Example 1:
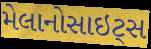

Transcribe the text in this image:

મેલાનોસાઇટ્સ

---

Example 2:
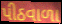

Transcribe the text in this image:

પીઠવાળા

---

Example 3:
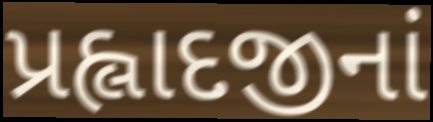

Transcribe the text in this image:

પ્રહ્લાદજીનાં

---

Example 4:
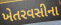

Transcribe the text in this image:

ખેતરવસીના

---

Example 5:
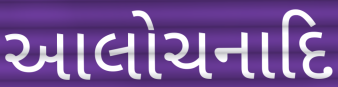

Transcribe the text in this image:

આલોચનાદિ